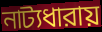
নাট্যধারায়